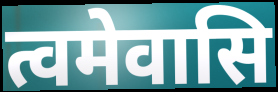
त्वमेवासि